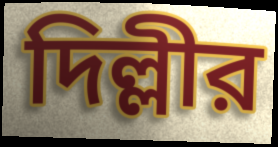
দিল্লীর